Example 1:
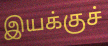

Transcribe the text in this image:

இயக்குச்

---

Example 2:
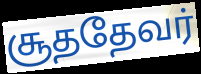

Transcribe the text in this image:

சூததேவர்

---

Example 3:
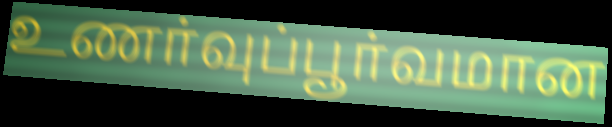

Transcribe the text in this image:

உணர்வுப்பூர்வமான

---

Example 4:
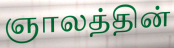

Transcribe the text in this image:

ஞாலத்தின்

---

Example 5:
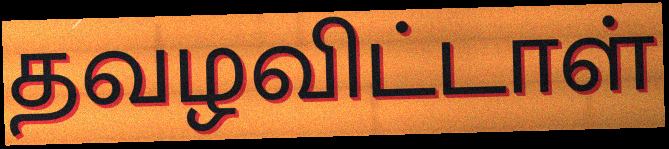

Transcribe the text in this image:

தவழவிட்டாள்